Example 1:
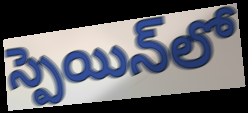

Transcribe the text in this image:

స్పెయిన్‌లో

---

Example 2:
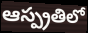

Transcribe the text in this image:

ఆస్ప్రతిలో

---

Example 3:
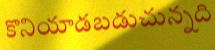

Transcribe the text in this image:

కొనియాడబడుచున్నది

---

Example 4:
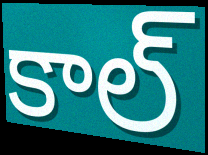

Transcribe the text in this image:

కాల్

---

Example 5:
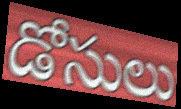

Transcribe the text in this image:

డోసులు